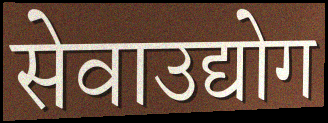
सेवाउद्योग